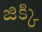
జిక్కి